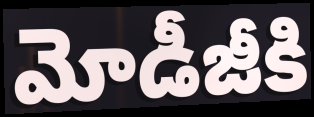
మోడీజీకి